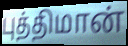
புத்திமான்